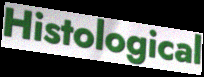
Histological